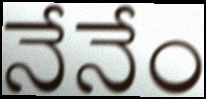
నేనేం